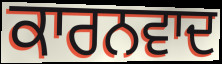
ਕਾਰਨਵਾਦ